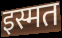
इस्मत